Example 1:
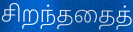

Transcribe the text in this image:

சிறந்ததைத்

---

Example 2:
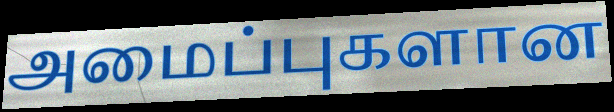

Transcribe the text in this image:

அமைப்புகளான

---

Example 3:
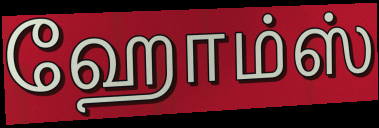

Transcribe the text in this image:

ஹோம்ஸ்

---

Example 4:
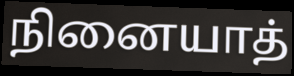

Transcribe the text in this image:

நினையாத்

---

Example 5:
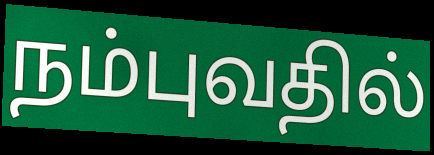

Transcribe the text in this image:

நம்புவதில்